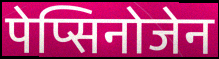
पेप्सिनोजेन